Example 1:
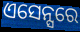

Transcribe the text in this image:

ଏସେନ୍ସରେ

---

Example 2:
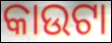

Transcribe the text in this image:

କାଉଟା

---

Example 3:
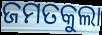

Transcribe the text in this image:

ଜମତକୁଲା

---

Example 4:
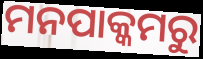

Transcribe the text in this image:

ମନପାକ୍କମରୁ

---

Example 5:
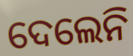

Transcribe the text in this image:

ଦେଲେନି